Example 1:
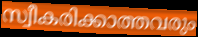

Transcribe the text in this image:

സ്വീകരിക്കാത്തവരും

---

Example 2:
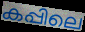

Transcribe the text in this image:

കപ്പിലെ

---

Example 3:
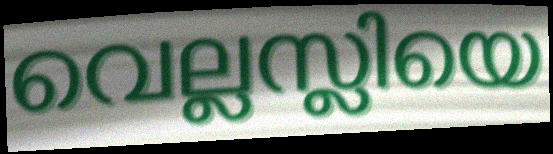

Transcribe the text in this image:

വെല്ലസ്ലിയെ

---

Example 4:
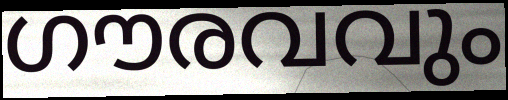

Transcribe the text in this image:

ഗൗരവവും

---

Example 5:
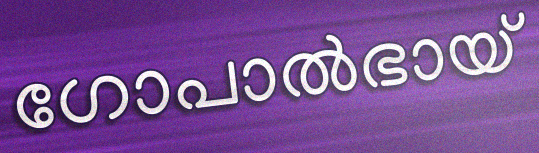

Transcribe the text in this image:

ഗോപാൽഭായ്